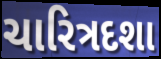
ચારિત્રદશા